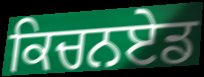
ਕਿਚਨਏਡ